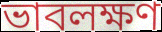
ভাবলক্ষণ